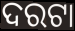
ଦରଟା